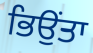
ਭਿਉਂਤਾ